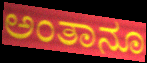
ಅಂತಾನೂ